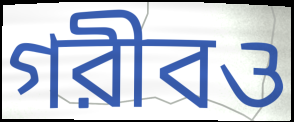
গরীবও